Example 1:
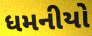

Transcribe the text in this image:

ધમનીયો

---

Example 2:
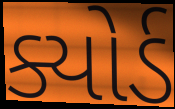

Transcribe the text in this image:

ક્યોર્ડ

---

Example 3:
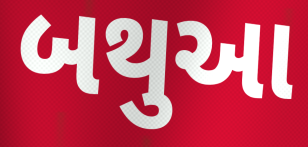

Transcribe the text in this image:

બથુઆ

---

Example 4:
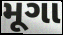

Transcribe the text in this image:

મૂગા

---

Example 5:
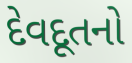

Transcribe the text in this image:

દેવદૂતનો